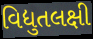
વિદ્યુતલક્ષી